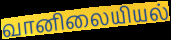
வானிலையியல்